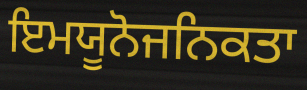
ਇਮਯੂਨੋਜਨਿਕਤਾ